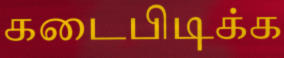
கடைபிடிக்க